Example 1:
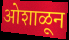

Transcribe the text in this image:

ओशाळून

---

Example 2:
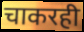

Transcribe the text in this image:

चाकरही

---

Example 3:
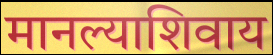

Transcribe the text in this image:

मानल्याशिवाय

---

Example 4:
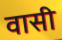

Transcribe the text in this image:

वासी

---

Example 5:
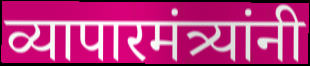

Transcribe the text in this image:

व्यापारमंत्र्यांनी